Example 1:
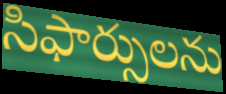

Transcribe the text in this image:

సిఫార్సులను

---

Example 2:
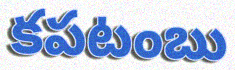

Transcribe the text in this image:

కపటంబు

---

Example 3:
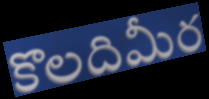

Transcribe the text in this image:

కొలదిమీర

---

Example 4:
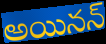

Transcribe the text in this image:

అయినన్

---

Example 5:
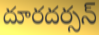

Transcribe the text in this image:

దూరదర్సన్